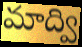
మాద్వి